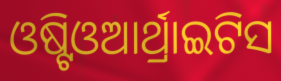
ଓଷ୍ଟିଓଆର୍ଥ୍ରାଇଟିସ